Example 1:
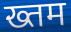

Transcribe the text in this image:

ख्तम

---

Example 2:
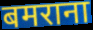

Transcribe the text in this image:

बमराना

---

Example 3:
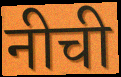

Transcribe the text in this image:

नीची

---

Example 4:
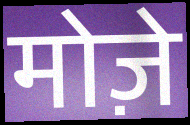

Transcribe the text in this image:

मोज़े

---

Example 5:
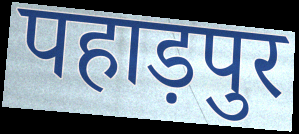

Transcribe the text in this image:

पहाड़पुर